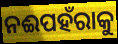
ନଈପହଁରାକୁ